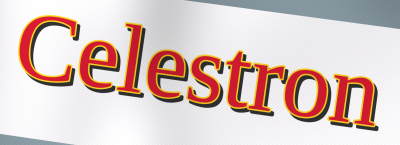
Celestron